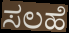
ಸಲಹೆ